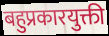
बहुप्रकारयुक्ती